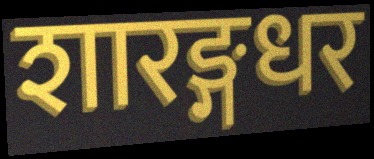
शारङ्गधर